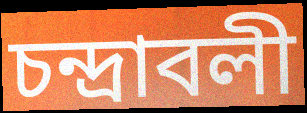
চন্দ্রাবলী